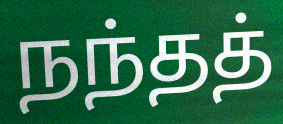
நந்தத்